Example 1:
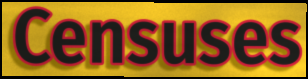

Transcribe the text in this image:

Censuses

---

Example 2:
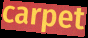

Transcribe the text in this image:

carpet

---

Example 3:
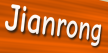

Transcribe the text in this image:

Jianrong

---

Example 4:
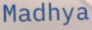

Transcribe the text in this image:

Madhya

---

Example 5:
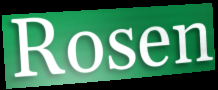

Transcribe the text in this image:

Rosen